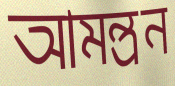
আমন্ত্রন